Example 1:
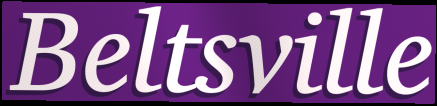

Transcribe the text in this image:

Beltsville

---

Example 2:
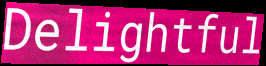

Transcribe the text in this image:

Delightful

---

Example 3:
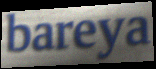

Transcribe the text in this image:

bareya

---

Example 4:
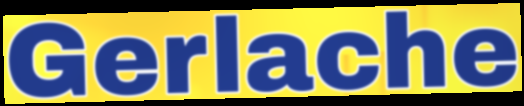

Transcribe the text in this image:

Gerlache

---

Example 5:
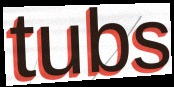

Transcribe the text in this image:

tubs